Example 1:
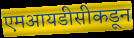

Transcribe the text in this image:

एमआयडीसीकडून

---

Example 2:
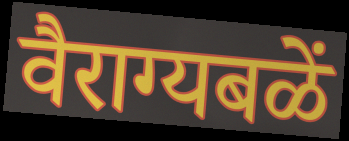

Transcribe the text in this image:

वैराग्यबळें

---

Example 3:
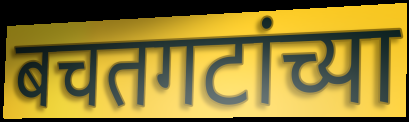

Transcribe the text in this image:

बचतगटांच्या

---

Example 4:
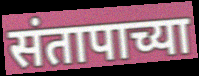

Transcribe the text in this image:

संतापाच्या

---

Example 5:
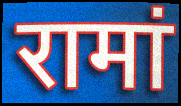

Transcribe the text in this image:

रामां